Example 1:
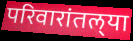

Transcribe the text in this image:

परिवारांतल्या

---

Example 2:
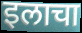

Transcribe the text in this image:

इलाचा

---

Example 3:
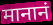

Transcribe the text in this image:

मानानं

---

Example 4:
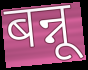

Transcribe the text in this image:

बन्नू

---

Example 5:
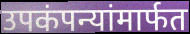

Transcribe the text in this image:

उपकंपन्यांमार्फत